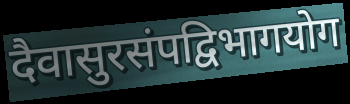
दैवासुरसंपद्विभागयोग